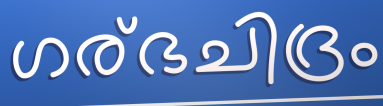
ഗര്ഭചിദ്രം